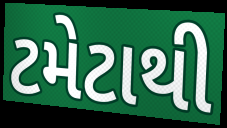
ટમેટાથી